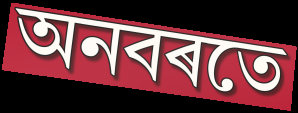
অনবৰতে